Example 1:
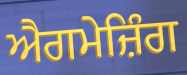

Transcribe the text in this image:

ਐਗਮੇਜ਼ਿੰਗ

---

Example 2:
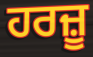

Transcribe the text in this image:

ਹਰਜ਼ੂ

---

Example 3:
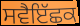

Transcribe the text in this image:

ਸਵੈਇੱਛਕ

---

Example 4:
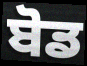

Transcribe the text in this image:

ਬੋਡ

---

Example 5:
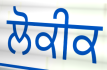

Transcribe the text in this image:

ਲੋਕੀਕ